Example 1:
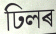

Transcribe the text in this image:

ঢিলৰ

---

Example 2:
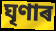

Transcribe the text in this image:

ঘৃণাৰ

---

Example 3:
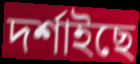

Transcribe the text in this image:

দৰ্শাইছে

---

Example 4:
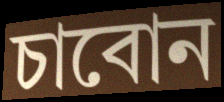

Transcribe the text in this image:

চাবোন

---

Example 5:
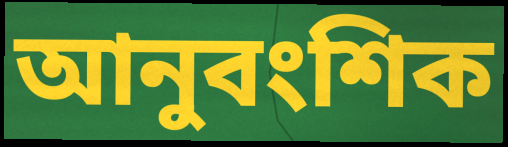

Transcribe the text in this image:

আনুবংশিক